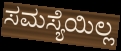
ಸಮಸ್ಯೆಯಿಲ್ಲ